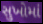
સુખોમાં